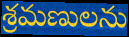
శ్రమణులను